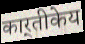
कार्तीकेय